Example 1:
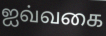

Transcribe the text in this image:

ஐவ்வகை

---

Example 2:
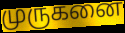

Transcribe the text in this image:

முருகனை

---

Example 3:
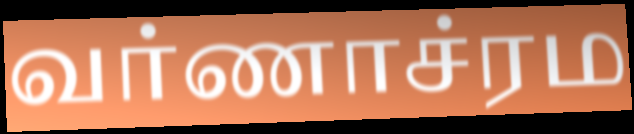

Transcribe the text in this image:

வர்ணாச்ரம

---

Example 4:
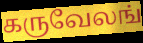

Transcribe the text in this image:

கருவேலங்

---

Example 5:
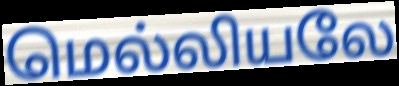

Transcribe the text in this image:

மெல்லியலே